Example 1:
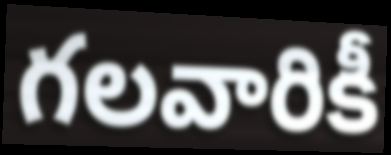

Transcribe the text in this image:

గలవారికీ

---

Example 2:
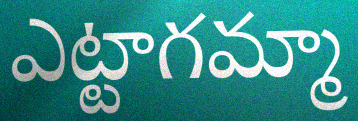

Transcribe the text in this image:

ఎట్టాగమ్మా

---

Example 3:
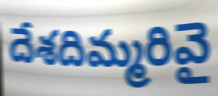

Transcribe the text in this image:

దేశదిమ్మరివై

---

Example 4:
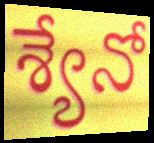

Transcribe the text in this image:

శ్యేనో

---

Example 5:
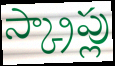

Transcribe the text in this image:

స్క్రాప్లు